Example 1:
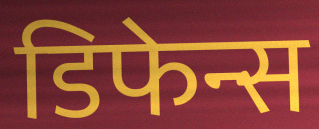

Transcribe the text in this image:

डिफेन्स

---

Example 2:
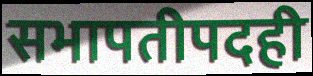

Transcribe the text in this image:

सभापतीपदही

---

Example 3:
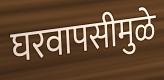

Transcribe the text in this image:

घरवापसीमुळे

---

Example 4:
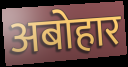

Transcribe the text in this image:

अबोहार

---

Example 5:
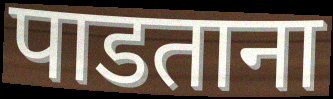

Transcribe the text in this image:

पाडताना